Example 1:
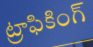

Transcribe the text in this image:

ట్రాఫికింగ్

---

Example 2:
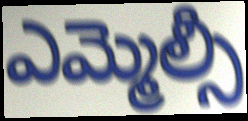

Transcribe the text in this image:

ఎమ్మెల్సీ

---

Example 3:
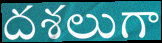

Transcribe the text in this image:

దశలుగా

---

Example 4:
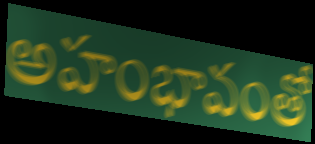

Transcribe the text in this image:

అహంభావంతో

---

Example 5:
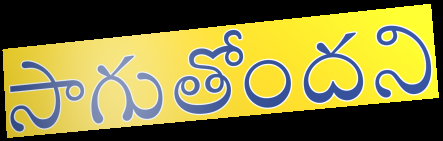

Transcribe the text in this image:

సాగుతోందని